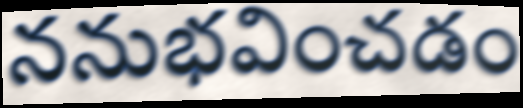
ననుభవించడం